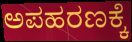
ಅಪಹರಣಕ್ಕೆ